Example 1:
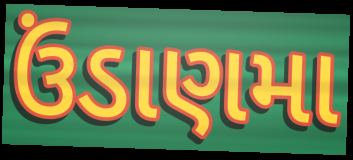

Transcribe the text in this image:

ઉંડાણમા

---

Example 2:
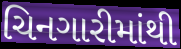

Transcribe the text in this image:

ચિનગારીમાંથી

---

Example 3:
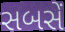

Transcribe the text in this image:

સબસેં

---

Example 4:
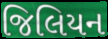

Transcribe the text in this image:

જિલિયન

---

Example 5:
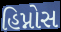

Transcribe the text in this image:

હિપ્નોસ